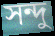
সন্দু